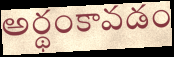
అర్థంకావడం